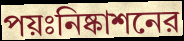
পয়ঃনিষ্কাশনের